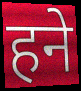
हने